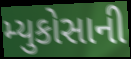
મ્યુકોસાની